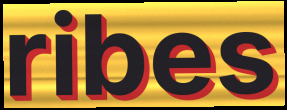
ribes